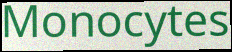
Monocytes